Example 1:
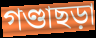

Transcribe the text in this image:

গণ্ডাছড়া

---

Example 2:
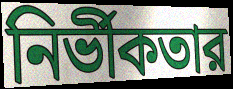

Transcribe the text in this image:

নির্ভীকতার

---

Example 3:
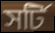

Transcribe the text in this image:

সর্টি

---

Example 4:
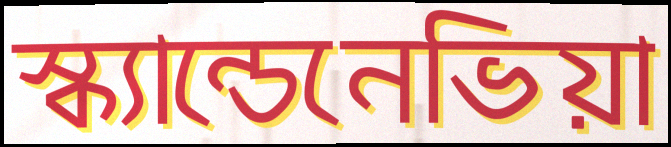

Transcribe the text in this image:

স্ক্যান্ডেনেভিয়া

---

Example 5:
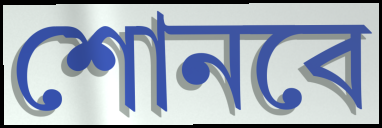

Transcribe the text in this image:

শোনবে